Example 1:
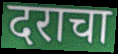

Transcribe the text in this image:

दराचा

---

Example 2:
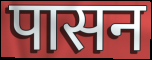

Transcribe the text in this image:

पासन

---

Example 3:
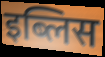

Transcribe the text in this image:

इब्लिस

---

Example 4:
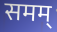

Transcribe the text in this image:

समम्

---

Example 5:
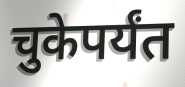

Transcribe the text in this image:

चुकेपर्यंत